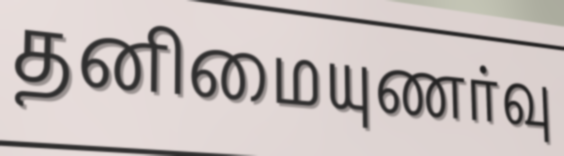
தனிமையுணர்வு